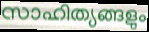
സാഹിത്യങ്ങളും